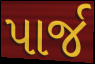
પાર્જ